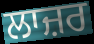
ਲਾਜ਼ਰ